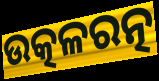
ଉତ୍କଳରତ୍ନ